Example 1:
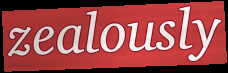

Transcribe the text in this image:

zealously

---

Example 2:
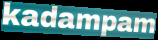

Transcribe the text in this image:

kadampam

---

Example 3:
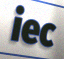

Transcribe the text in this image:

iec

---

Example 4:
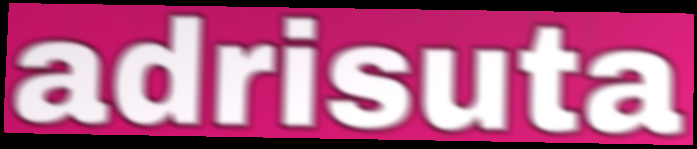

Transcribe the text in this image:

adrisuta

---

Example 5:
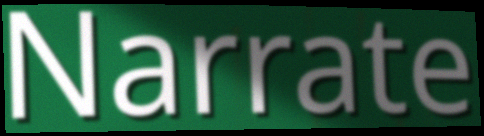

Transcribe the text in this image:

Narrate